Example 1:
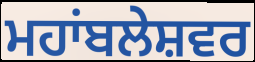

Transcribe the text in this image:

ਮਹਾਂਬਲੇਸ਼ਵਰ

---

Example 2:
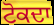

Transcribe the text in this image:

ਟੋਕਦਾ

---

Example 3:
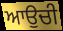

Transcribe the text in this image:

ਆਉਚੀ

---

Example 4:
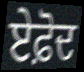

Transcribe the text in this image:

ਏਫ਼ੋਦ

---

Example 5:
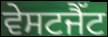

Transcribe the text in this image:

ਵੇਸਟਜੈੱਟ